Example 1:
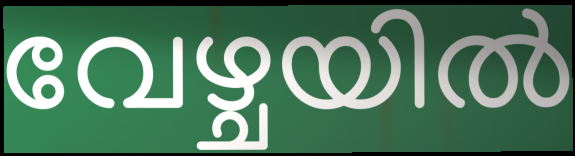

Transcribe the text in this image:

വേഴ്ചയിൽ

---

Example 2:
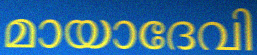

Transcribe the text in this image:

മായാദേവി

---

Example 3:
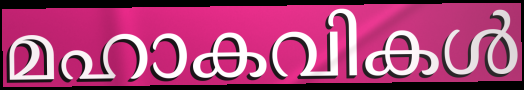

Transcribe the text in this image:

മഹാകവികൾ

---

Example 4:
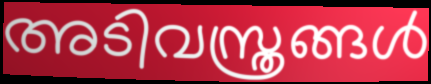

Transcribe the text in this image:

അടിവസ്ത്രങ്ങൾ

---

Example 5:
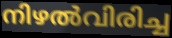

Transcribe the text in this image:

നിഴൽവിരിച്ച